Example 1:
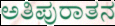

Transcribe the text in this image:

ಅತಿಪುರಾತನ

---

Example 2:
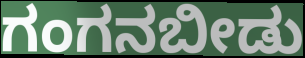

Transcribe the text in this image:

ಗಂಗನಬೀಡು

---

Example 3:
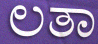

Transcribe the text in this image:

ಲತಾ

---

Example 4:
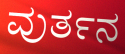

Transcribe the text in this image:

ವುರ್ತನ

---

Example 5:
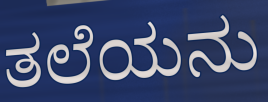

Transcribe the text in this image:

ತಲೆಯನು